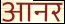
आनर